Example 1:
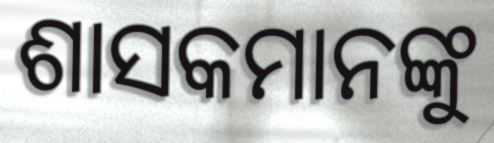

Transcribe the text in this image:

ଶାସକମାନଙ୍କୁ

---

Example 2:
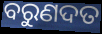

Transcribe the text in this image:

ବରୁଣଦତ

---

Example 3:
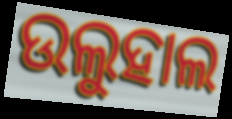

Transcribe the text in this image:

ଉଲୁହାଲ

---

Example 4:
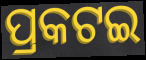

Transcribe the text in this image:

ପ୍ରକଟଇ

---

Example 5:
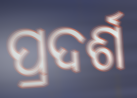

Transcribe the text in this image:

ପ୍ରଦର୍ଶ